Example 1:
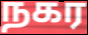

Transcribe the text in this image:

நகர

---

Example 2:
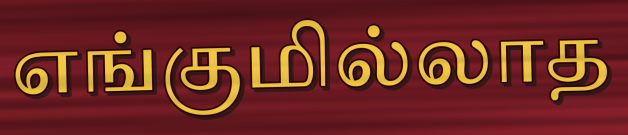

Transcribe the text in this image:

எங்குமில்லாத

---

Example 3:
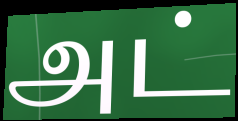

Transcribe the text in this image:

அட்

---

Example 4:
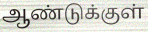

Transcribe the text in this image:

ஆண்டுக்குள்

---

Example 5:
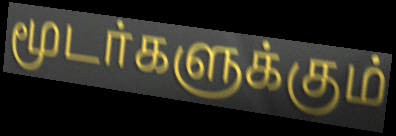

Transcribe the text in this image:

மூடர்களுக்கும்